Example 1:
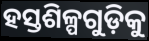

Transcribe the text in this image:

ହସ୍ତଶିଳ୍ପଗୁଡ଼ିକୁ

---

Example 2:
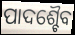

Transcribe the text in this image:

ପାଦଶ୍ଚୈବ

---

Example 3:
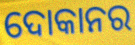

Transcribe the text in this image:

ଦୋକାନର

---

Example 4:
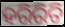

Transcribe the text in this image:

ହରିରିତି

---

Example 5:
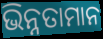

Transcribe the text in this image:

ଭିନ୍ନତାମାନ